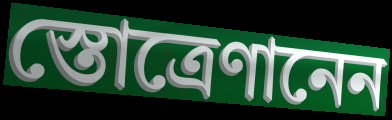
স্তোত্রেণানেন